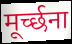
मूर्च्छना